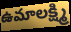
ఉమాలక్ష్మి